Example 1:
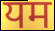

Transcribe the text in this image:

यम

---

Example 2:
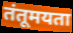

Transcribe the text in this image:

तंतूमयता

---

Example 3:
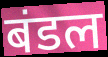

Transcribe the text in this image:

बंडल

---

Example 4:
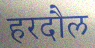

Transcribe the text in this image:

हरदौल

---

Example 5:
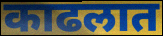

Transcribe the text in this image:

काढलात